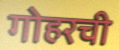
गोहरची